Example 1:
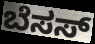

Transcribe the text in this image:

ಬೆಸಸ್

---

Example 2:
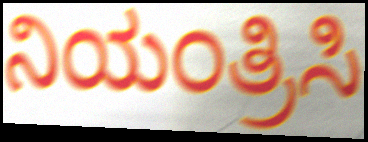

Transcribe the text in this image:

ನಿಯಂತ್ರಿಸಿ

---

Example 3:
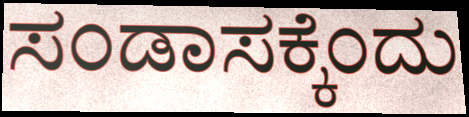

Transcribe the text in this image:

ಸಂಡಾಸಕ್ಕೆಂದು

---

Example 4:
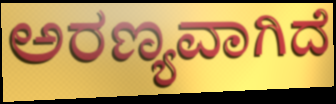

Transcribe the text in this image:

ಅರಣ್ಯವಾಗಿದೆ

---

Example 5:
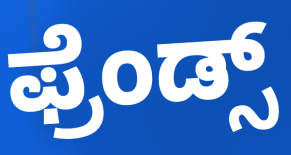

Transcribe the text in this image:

ಫ್ರೆಂಡ್ಸ್